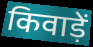
किवाड़ें